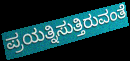
ಪ್ರಯತ್ನಿಸುತ್ತಿರುವಂತೆ